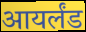
आयर्लंड